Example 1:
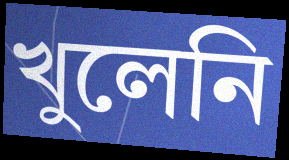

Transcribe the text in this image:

খুলেনি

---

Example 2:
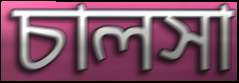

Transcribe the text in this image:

চালসা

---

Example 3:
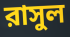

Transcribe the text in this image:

রাসুল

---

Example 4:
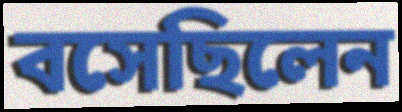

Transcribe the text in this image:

বসেছিলেন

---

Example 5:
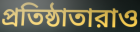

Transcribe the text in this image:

প্রতিষ্ঠাতারাও